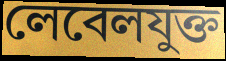
লেবেলযুক্ত